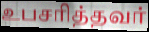
உபசரித்தவர்